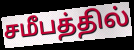
சமீபத்தில்